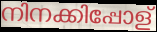
നിനക്കിപ്പോള്